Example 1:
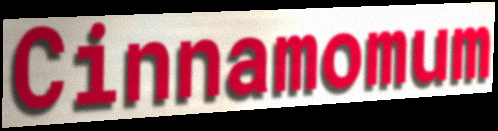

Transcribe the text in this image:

Cinnamomum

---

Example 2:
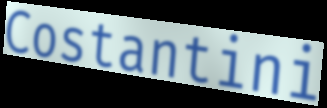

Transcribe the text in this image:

Costantini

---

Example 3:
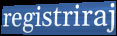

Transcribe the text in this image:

registriraj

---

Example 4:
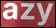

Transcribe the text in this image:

azy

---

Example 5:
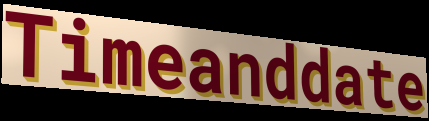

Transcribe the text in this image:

Timeanddate